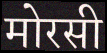
मोरसी